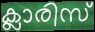
ക്ലാരിസ്